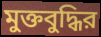
মুক্তবুদ্ধির